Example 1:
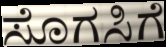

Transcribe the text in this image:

ಸೊಗಸಿಗೆ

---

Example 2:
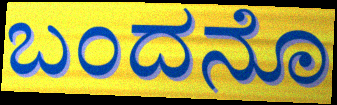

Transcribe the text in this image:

ಬಂದನೊ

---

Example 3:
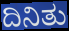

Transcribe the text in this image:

ದಿನಿತು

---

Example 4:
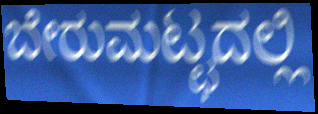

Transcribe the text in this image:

ಬೇರುಮಟ್ಟದಲ್ಲಿ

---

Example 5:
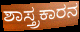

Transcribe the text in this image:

ಶಾಸ್ತ್ರಕಾರನ